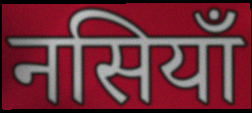
नसियाँ